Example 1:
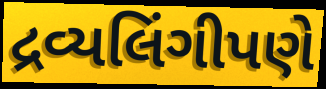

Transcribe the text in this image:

દ્રવ્યલિંગીપણે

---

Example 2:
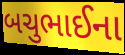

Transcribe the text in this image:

બચુભાઈના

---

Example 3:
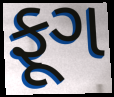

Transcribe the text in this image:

ફૂગ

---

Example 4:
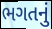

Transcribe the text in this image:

ભગતનું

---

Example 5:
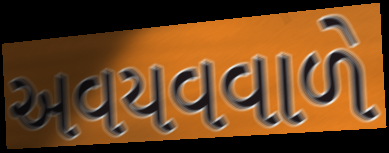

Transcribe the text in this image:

અવયવવાળે